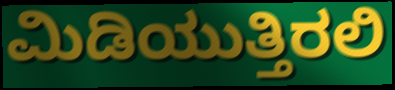
ಮಿಡಿಯುತ್ತಿರಲಿ